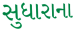
સુધારાના